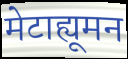
मेटाह्यूमन